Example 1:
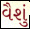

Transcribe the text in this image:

વૈશું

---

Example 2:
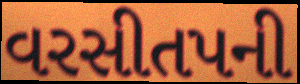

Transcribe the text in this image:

વરસીતપની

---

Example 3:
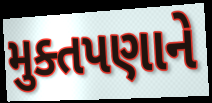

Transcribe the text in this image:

મુક્તપણાને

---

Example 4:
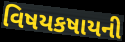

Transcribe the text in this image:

વિષયકષાયની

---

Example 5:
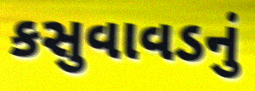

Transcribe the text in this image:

કસુવાવડનું